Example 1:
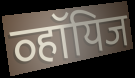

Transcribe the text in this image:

व्हॉयिज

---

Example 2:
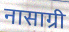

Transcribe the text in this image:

नासाग्री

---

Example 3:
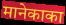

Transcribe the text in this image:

मानेकाका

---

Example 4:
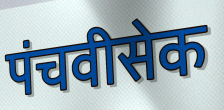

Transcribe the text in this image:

पंचवीसेक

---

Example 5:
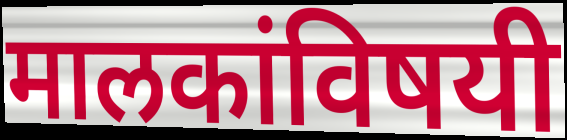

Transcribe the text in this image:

मालकांविषयी